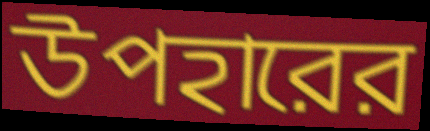
উপহারের